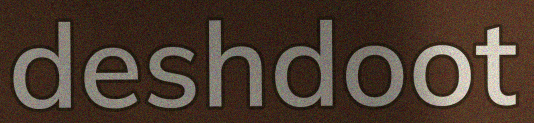
deshdoot